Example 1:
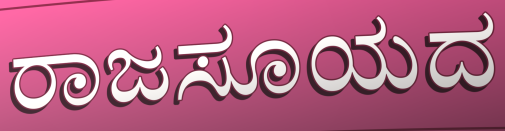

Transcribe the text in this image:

ರಾಜಸೂಯದ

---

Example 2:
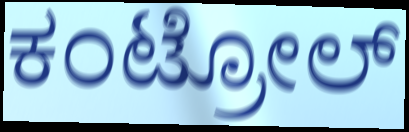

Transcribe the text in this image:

ಕಂಟ್ರೋಲ್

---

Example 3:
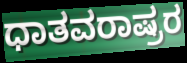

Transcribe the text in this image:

ಧಾತವರಾಷ್ರರ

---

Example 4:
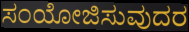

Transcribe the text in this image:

ಸಂಯೋಜಿಸುವುದರ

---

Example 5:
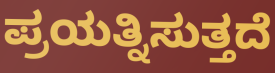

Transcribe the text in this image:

ಪ್ರಯತ್ನಿಸುತ್ತದೆ